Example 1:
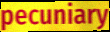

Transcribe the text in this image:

pecuniary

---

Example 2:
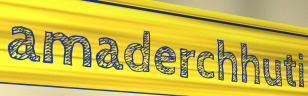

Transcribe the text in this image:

amaderchhuti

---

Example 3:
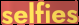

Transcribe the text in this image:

selfies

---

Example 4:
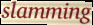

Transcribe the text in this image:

slamming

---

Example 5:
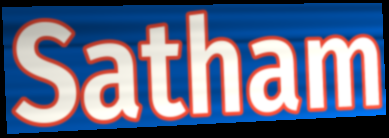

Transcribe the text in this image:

Satham